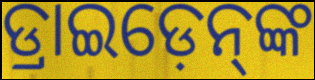
ଡ୍ରାଇଡ଼େନ୍‌ଙ୍କ